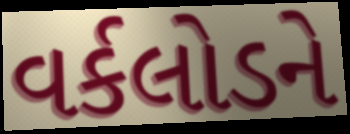
વર્કલોડને